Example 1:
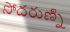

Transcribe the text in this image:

సోదరుణ్ని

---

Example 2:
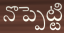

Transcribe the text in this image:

నొప్పెట్టి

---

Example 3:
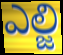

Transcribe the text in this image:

ఎల్జి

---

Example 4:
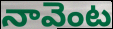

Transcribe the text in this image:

నావెంట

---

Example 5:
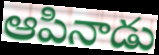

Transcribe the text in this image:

ఆపినాడు